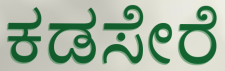
ಕಡಸೇರೆ